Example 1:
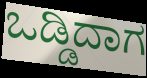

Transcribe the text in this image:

ಒಡ್ಡಿದಾಗ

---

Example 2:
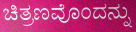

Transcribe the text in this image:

ಚಿತ್ರಣವೊಂದನ್ನು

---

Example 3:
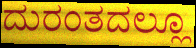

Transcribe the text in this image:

ದುರಂತದಲ್ಲೂ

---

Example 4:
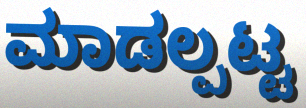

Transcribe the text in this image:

ಮಾಡಲ್ಪಟ್ಟ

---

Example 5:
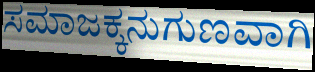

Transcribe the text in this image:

ಸಮಾಜಕ್ಕನುಗುಣವಾಗಿ